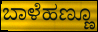
ಬಾಳೆಹಣ್ಣೂ